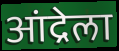
आंद्रेला